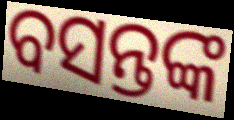
ବସନ୍ତଙ୍କ